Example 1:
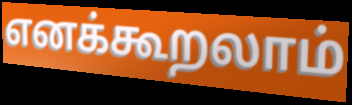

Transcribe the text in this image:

எனக்கூறலாம்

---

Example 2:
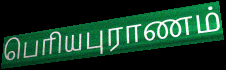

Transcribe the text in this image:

பெரியபுராணம்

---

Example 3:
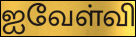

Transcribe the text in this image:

ஐவேள்வி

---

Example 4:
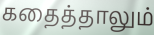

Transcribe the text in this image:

கதைத்தாலும்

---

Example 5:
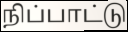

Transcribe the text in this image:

நிப்பாட்டு